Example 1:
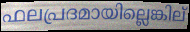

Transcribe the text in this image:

ഫലപ്രദമായില്ലെങ്കില്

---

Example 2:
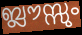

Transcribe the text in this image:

ബ്ലൗസ്സും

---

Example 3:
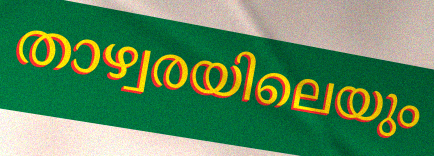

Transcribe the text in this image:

താഴ്വരയിലെയും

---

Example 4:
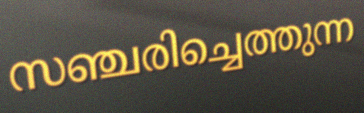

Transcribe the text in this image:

സഞ്ചരിച്ചെത്തുന്ന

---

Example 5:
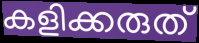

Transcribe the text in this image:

കളിക്കരുത്